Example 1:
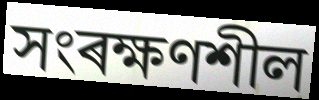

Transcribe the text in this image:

সংৰক্ষণশীল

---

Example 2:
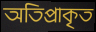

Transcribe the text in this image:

অতিপ্ৰাকৃত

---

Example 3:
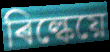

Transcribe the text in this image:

ৰিল্কেয়ে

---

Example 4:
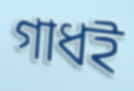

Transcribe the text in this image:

গাধই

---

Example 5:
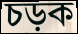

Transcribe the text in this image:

চড়ক